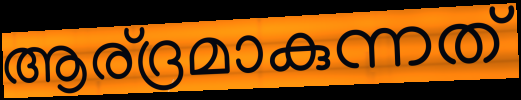
ആര്ദ്രമാകുന്നത്